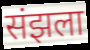
संझला